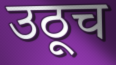
उठूच